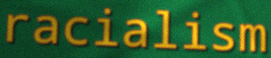
racialism